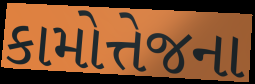
કામોત્તેજના